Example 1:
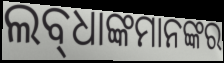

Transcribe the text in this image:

ଲବ୍‌ଧାଙ୍କମାନଙ୍କର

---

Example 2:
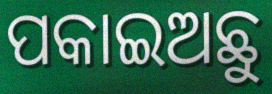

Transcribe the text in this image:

ପକାଇଅଛୁ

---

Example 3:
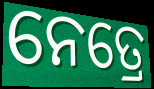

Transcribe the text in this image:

ନେତ୍ରେ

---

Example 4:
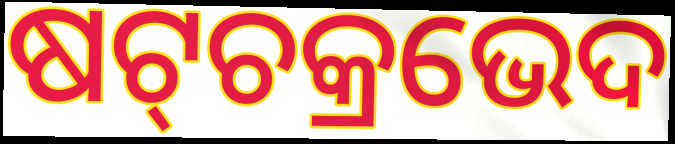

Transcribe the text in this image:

ଷଟ୍‌ଚକ୍ରଭେଦ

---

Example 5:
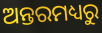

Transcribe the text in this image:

ଅନ୍ତରମଧ୍ୟରୁ